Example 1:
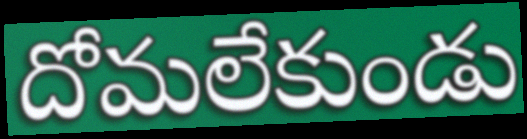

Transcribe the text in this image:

దోమలేకుండు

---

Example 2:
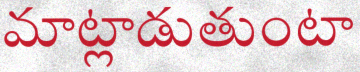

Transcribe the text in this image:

మాట్లాడుతుంటా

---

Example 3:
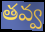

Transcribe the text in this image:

తవ్వ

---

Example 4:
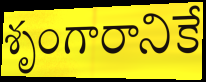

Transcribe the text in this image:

శృంగారానికే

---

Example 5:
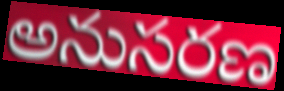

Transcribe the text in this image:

అనుసరణ